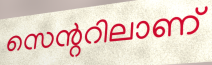
സെന്ററിലാണ്